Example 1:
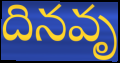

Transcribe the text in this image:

దినవృ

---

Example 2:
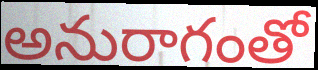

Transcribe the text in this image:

అనురాగంతో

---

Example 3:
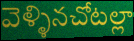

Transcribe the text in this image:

వెళ్ళినచోటల్లా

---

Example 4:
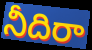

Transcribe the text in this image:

నీదిరా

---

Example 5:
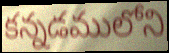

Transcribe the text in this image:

కన్నడములోని